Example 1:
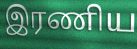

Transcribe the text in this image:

இரணிய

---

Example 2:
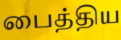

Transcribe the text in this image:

பைத்திய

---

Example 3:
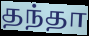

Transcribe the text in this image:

தந்தா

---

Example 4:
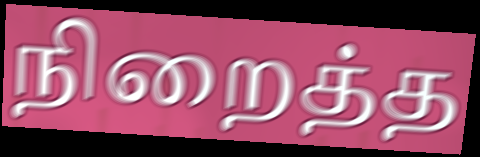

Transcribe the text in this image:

நிறைத்த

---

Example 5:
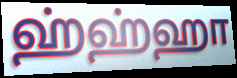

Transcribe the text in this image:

ஹ்ஹ்ஹா